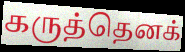
கருத்தெனக்